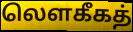
லௌகீகத்